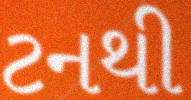
ટનથી